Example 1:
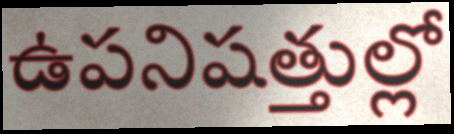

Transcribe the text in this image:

ఉపనిషత్తుల్లో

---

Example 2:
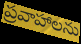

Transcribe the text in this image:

ప్రవాహాలను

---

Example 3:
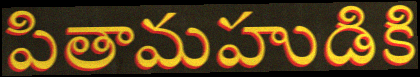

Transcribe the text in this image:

పితామహుడికి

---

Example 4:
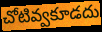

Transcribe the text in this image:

చోటివ్వకూడదు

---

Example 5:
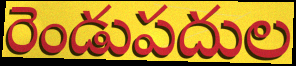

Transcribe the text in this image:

రెండుపదుల